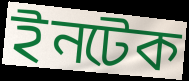
ইনটেক